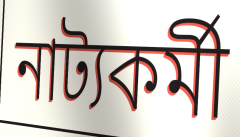
নাট্যকৰ্মী